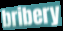
bribery